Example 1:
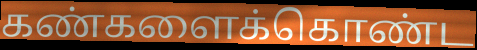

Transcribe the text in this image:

கண்களைக்கொண்ட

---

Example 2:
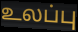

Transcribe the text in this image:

உலப்பு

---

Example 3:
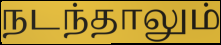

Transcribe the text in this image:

நடந்தாலும்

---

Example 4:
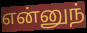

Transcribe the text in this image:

என்னுந்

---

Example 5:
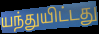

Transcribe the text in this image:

யந்துயிட்டது